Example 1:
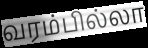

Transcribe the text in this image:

வரம்பில்லா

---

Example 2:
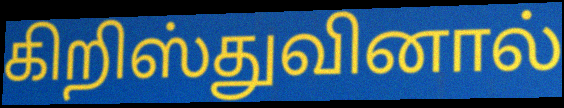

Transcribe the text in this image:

கிறிஸ்துவினால்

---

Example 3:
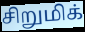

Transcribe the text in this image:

சிறுமிக்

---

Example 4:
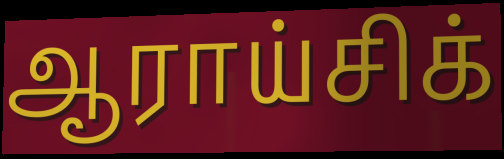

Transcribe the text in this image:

ஆராய்சிக்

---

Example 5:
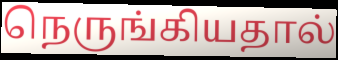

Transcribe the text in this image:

நெருங்கியதால்